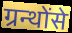
ग्रन्थोंसे